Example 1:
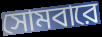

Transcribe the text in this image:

সোমবারে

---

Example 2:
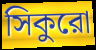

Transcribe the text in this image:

সিকুরো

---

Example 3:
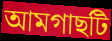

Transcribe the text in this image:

আমগাছটি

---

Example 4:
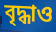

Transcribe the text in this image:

বৃদ্ধাও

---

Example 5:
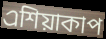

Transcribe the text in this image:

এশিয়াকাপ